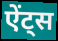
ऐंट्स